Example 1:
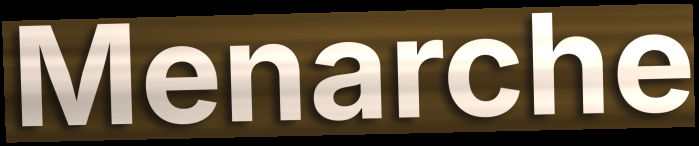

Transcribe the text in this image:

Menarche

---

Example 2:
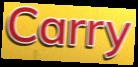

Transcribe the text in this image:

Carry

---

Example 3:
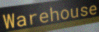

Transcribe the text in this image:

Warehouse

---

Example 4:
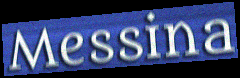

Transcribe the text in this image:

Messina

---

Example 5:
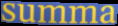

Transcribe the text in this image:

summa